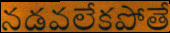
నడవలేకపోతే